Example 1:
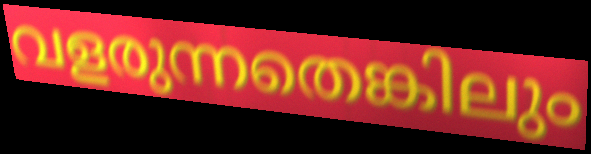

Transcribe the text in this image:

വളരുന്നതെങ്കിലും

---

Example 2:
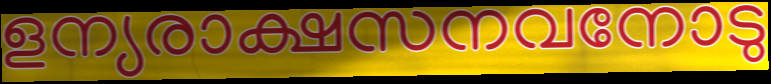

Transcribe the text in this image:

ളന്യരാക്ഷസനവനോടു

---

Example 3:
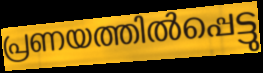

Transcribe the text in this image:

പ്രണയത്തിൽപ്പെട്ടു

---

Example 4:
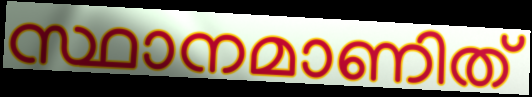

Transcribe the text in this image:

സ്ഥാനമാണിത്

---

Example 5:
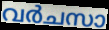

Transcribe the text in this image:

വർചസാ